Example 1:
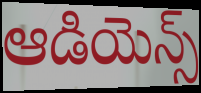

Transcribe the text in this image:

ఆడియెన్స్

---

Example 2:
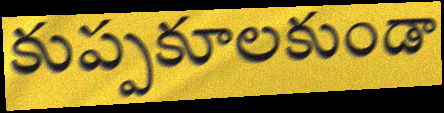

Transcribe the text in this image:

కుప్పకూలకుండా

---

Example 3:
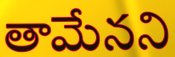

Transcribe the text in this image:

తామేనని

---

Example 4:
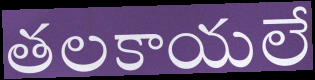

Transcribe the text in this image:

తలకాయలే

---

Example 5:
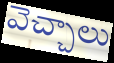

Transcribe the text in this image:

వెచ్చాలు